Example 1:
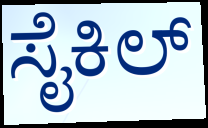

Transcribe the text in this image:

ಸೈಕಿಲ್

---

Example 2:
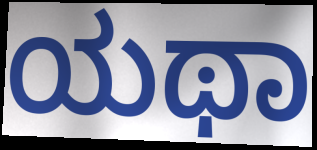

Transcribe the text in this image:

ಯಥಾ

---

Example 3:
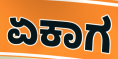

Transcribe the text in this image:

ಏಕಾಗ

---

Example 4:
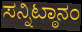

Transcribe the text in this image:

ಸನ್ನಿಟ್ಠಾನಂ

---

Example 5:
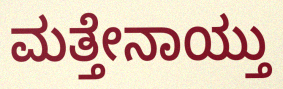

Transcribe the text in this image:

ಮತ್ತೇನಾಯ್ತು